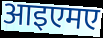
आइएमए